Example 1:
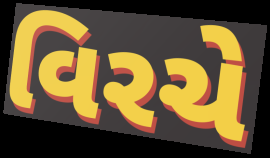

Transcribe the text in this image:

વિરચે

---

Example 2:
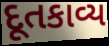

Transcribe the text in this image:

દૂતકાવ્ય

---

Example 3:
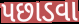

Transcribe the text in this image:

પછાડવા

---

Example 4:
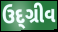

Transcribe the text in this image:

ઉદ્ગ્રીવ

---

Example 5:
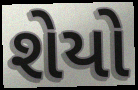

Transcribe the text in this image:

શેયો